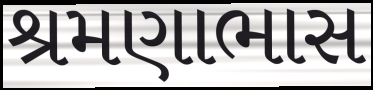
શ્રમણાભાસ